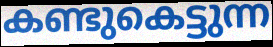
കണ്ടുകെട്ടുന്ന